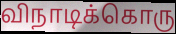
விநாடிக்கொரு